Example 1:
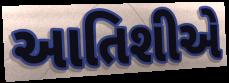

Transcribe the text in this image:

આતિશીએ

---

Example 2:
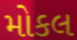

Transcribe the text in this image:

મોકલ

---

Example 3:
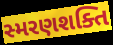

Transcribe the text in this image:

સ્મરણશક્તિ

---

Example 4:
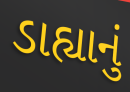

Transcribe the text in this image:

ડાહ્યાનું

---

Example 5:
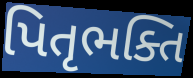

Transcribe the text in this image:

પિતૃભક્તિ